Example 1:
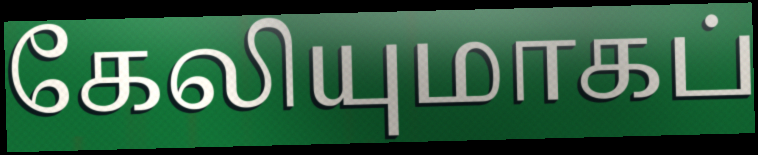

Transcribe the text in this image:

கேலியுமாகப்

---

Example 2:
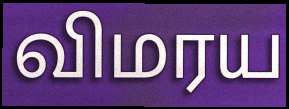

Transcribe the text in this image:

விமரய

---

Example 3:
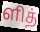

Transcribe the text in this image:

ளித்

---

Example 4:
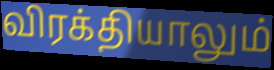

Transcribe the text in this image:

விரக்தியாலும்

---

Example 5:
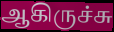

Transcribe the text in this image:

ஆகிருச்சு